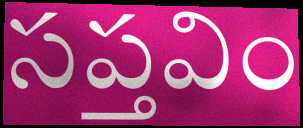
సప్తవిం